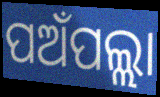
ପଅଁପଲ୍ଲା